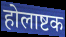
होलाष्टक